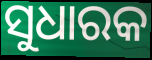
ସୁଧାରକ